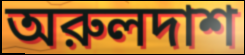
অরুলদাশ